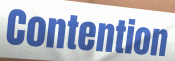
Contention